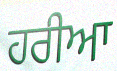
ਹਰੀਆ